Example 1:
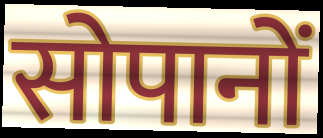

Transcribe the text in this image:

सोपानों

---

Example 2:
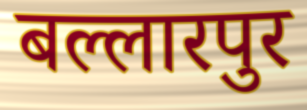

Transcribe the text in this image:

बल्लारपुर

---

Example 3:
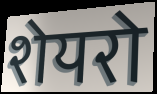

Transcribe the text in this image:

शेयरो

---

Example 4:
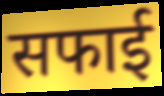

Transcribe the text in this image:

सफाई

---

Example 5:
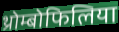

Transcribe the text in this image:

थ्रोम्बोफिलिया